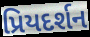
પ્રિયદર્શન